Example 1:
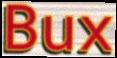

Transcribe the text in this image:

Bux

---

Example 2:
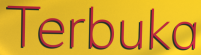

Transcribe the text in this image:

Terbuka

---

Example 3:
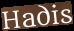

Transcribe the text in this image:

Hadis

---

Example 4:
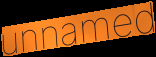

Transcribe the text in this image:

unnamed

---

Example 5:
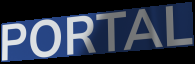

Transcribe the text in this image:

PORTAL